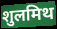
शुलमिथ